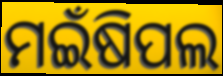
ମଇଁଷିପଲ